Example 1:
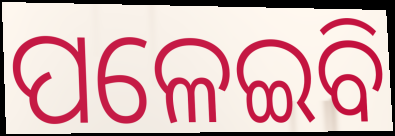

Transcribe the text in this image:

ପଳେଇବି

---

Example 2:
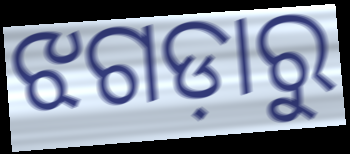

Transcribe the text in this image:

ଝଗଡ଼ାରୁ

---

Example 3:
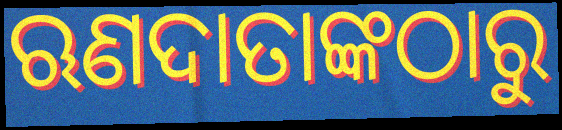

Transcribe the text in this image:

ଋଣଦାତାଙ୍କଠାରୁ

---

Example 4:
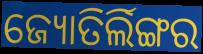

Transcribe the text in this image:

ଜ୍ୟୋତିର୍ଲିଙ୍ଗର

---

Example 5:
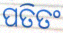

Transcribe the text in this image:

ପତିତଂ